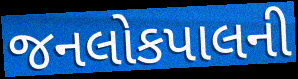
જનલોકપાલની